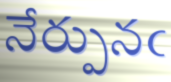
నేర్పునఁ